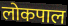
लोकपाल